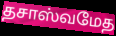
தசாஸ்வமேத